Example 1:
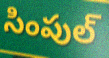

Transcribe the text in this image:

సింపుల్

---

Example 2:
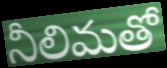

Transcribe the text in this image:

నీలిమతో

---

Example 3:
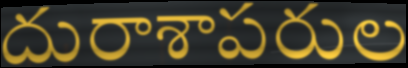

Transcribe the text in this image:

దురాశాపరుల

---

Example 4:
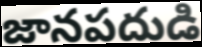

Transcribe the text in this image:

జానపదుడి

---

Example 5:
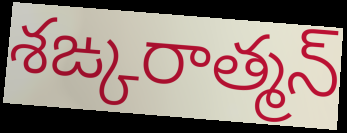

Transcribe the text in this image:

శఙ్కరాత్మన్